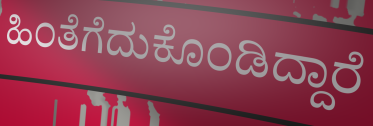
ಹಿಂತೆಗೆದುಕೊಂಡಿದ್ದಾರೆ